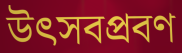
উৎসবপ্রবণ